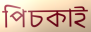
পিচকাই